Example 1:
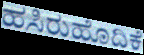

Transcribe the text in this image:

ಹಸಿರುಹೊದಿಕೆ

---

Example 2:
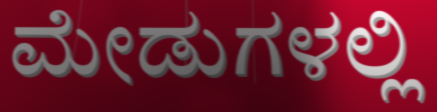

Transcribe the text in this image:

ಮೇಡುಗಳಲ್ಲಿ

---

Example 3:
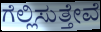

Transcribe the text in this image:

ಗೆಲ್ಲಿಸುತ್ತೇವೆ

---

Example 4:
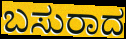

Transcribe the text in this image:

ಬಸುರಾದ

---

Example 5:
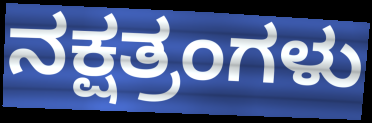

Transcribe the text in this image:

ನಕ್ಷತ್ರಂಗಳು